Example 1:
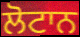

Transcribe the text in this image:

ਲੋਟਾਨ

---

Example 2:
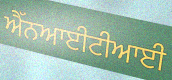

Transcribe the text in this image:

ਐੱਨਆਈਟੀਆਈ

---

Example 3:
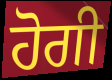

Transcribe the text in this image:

ਹੋਗੀ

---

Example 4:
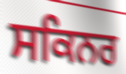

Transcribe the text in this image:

ਸਕਿਨਰ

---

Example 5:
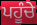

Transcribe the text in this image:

ਪਹੂੰਚੇ